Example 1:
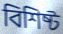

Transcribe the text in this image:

বিশিষ্ট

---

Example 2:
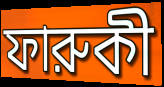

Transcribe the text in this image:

ফাৰুকী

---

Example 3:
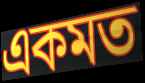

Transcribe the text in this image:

একমত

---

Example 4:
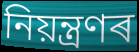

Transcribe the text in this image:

নিয়ন্ত্ৰণৰ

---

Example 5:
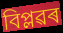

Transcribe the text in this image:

বিপ্লৱৰ